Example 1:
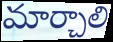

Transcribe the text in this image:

మార్చాలి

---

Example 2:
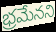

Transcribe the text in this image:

భ్రమేనని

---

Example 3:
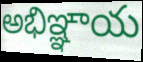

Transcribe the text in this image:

అభిఞ్ఞాయ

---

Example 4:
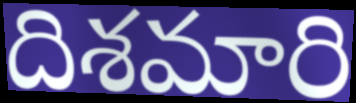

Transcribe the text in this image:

దిశమారి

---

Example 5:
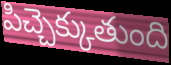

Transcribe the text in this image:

పిచ్చెక్కుతుంది